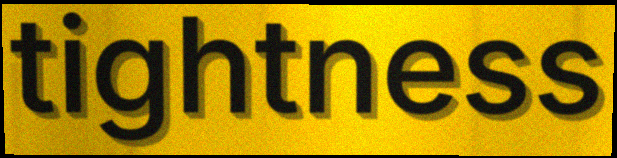
tightness